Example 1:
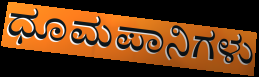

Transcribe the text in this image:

ಧೂಮಪಾನಿಗಳು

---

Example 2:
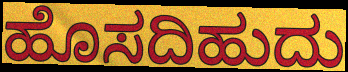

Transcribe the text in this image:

ಹೊಸದಿಹುದು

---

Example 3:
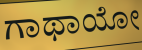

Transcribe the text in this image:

ಗಾಥಾಯೋ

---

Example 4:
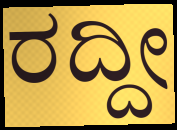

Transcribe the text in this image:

ರದ್ದೀ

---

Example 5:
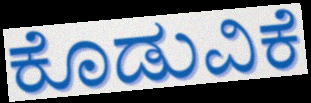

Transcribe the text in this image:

ಕೊಡುವಿಕೆ